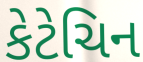
કેટેચિન